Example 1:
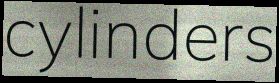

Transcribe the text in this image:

cylinders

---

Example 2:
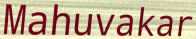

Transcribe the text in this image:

Mahuvakar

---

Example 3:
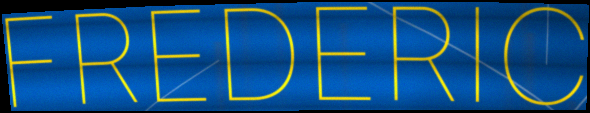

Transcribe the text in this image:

FREDERIC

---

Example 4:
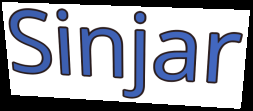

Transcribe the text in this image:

Sinjar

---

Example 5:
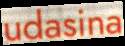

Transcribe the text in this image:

udasina